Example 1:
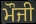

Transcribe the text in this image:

ਮੌਜੀ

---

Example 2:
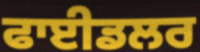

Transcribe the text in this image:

ਫਾਈਡਲਰ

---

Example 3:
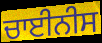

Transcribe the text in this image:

ਚਾਈਨੀਸ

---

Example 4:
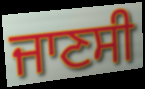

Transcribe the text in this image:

ਜਾਣਸੀ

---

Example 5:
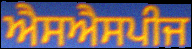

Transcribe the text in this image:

ਐਸਐਸਪੀਜ